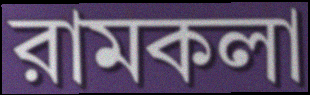
রামকলা